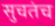
सुचतंच